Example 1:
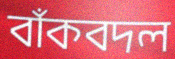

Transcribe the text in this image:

বাঁকবদল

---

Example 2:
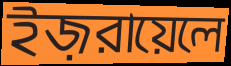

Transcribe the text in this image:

ইজ়রায়েলে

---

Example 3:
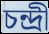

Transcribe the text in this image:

চন্দ্রী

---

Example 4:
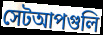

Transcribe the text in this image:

সেটআপগুলি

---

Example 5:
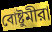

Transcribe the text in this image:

বোষ্টুমীরা